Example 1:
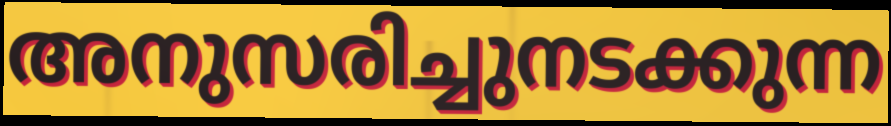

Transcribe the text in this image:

അനുസരിച്ചുനടക്കുന്ന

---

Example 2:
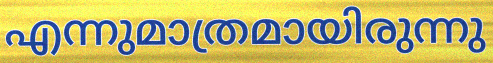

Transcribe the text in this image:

എന്നുമാത്രമായിരുന്നു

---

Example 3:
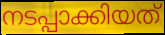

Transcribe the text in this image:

നടപ്പാക്കിയത്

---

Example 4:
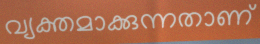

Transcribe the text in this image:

വ്യക്തമാക്കുന്നതാണ്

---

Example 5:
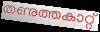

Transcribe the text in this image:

തണുത്തകാറ്റ്